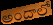
అందాలో